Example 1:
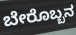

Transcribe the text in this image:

ಬೇರೊಬ್ಬನ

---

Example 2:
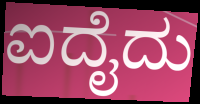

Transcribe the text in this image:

ಐದೈದು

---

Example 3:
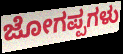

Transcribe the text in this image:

ಜೋಗಪ್ಪಗಳು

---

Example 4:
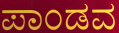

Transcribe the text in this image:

ಪಾಂಡವ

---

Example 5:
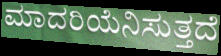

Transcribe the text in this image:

ಮಾದರಿಯೆನಿಸುತ್ತದೆ